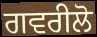
ਗਵਰੀਲੋ